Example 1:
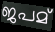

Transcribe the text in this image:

ജപമ്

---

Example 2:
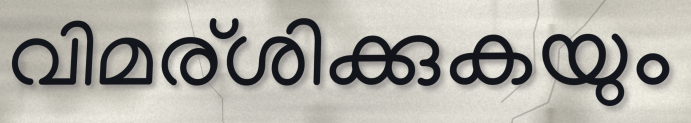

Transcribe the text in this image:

വിമര്ശിക്കുകയും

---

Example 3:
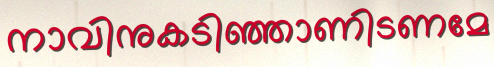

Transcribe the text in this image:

നാവിനുകടിഞ്ഞാണിടണമേ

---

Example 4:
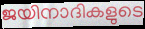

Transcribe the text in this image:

ജയിനാദികളുടെ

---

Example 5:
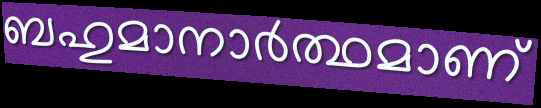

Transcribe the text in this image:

ബഹുമാനാർത്ഥമാണ്